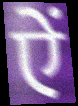
ऐं